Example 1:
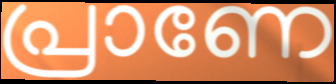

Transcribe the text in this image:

പ്രാണേ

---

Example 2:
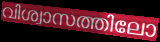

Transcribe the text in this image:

വിശ്വാസത്തിലോ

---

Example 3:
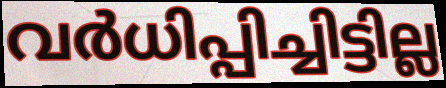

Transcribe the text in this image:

വർധിപ്പിച്ചിട്ടില്ല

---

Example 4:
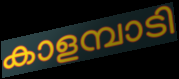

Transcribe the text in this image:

കാളമ്പാടി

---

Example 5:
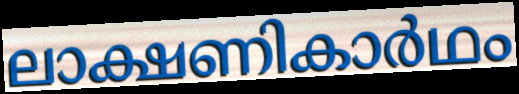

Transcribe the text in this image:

ലാക്ഷണികാർഥം